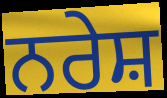
ਨਰੇਸ਼